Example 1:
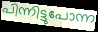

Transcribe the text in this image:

പിന്നിട്ടുപോന്ന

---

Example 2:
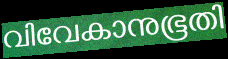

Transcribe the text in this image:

വിവേകാനുഭൂതി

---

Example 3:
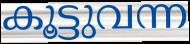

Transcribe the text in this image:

കൂട്ടുവന്ന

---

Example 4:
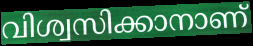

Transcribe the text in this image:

വിശ്വസിക്കാനാണ്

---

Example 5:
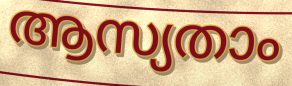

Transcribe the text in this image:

ആസ്യതാം